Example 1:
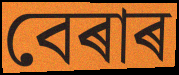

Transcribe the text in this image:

বেৰাৰ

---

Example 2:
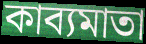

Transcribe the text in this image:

কাব্যমাতা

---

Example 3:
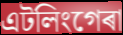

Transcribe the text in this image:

এটলিংগেৰা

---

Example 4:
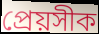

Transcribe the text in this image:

প্ৰেয়সীক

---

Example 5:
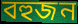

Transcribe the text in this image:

বহুজন